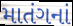
માતંગનાં